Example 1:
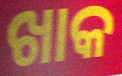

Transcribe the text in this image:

ଖାକ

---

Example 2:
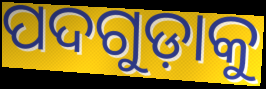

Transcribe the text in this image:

ପଦଗୁଡ଼ାକୁ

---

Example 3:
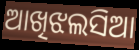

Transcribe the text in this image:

ଆଖିଝଲସିଆ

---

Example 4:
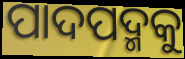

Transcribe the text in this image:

ପାଦପଦ୍ମକୁ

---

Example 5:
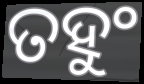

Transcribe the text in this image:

ତହୁଂ